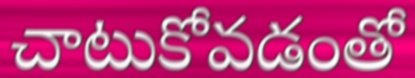
చాటుకోవడంతో